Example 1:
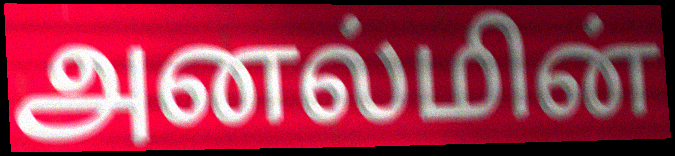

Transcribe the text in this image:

அனல்மின்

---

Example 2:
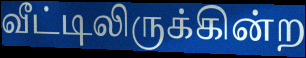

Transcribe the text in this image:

வீட்டிலிருக்கின்ற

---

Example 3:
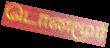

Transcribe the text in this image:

டொனமூர்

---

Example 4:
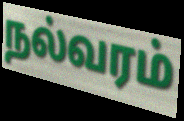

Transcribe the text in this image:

நல்வரம்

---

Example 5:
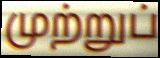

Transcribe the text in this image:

முற்றுப்